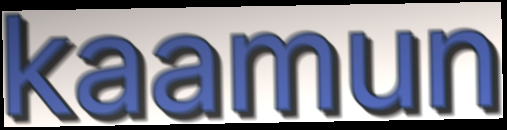
kaamun